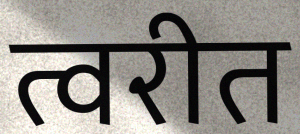
त्वरीत